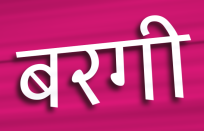
बरगी